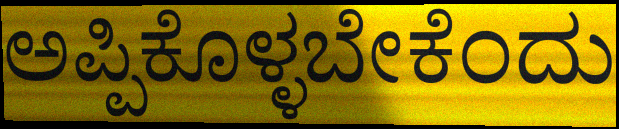
ಅಪ್ಪಿಕೊಳ್ಳಬೇಕೆಂದು